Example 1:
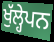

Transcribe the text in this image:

ਖੁੱਲ੍ਹੇਪਨ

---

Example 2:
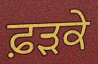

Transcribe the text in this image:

ਫ਼ਡ਼ਕੇ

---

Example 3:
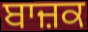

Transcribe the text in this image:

ਬਾਜ਼ਕ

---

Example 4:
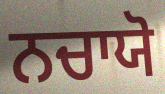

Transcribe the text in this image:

ਨਚਾਯੋ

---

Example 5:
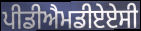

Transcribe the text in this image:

ਪੀਡੀਐਮਡੀਏਏਸੀ